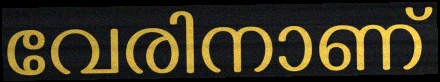
വേരിനാണ്